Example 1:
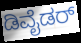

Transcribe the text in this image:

ಡಿವೈಡರ್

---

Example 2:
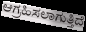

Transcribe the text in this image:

ಆಗ್ರಹಿಸಲಾಗುತ್ತಿದೆ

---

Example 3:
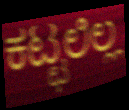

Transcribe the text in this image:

ಕಟ್ಟಲಿಲ್ಲ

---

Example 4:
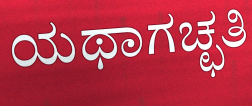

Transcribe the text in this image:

ಯಥಾಗಚ್ಛತಿ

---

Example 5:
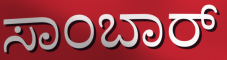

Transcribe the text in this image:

ಸಾಂಬಾರ್